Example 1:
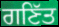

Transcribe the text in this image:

ਗਣਿੱਤ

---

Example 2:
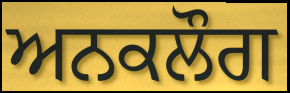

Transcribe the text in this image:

ਅਨਕਲੌਗ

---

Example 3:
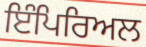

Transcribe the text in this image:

ਇੰਪਿਰਿਅਲ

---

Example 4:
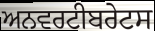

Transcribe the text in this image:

ਅਨਵਰਟੀਬਰੇਟਸ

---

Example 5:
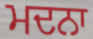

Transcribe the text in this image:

ਮਦਨਾ